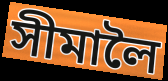
সীমালৈ